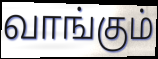
வாங்கும்